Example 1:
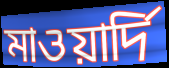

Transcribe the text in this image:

মাওয়ার্দি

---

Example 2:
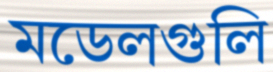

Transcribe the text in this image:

মডেলগুলি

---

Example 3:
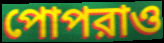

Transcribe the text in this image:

পোপরাও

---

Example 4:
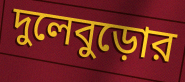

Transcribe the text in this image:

দুলেবুড়োর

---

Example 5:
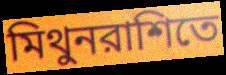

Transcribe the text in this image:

মিথুনরাশিতে